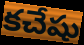
కచేషు